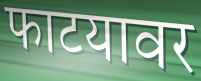
फाटयावर